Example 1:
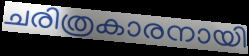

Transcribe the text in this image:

ചരിത്രകാരനായി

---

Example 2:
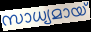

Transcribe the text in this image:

സാധ്യമായ്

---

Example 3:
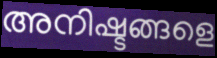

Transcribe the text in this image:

അനിഷ്ടങ്ങളെ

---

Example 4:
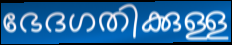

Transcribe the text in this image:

ഭേദഗതിക്കുള്ള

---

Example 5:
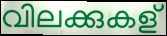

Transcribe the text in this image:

വിലക്കുകള്